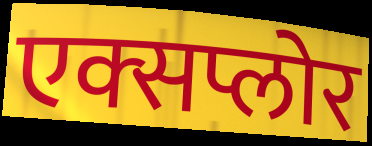
एक्‍सप्लोर